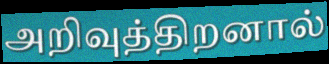
அறிவுத்திறனால்